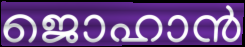
ജൊഹാൻ